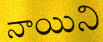
నాయిని